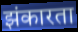
झंकारता